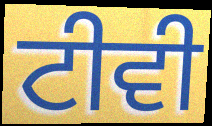
ਟੀਵੀ